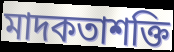
মাদকতাশক্তি